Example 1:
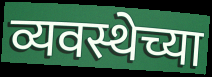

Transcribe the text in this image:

व्यवस्थेच्या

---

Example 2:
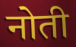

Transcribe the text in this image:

नोती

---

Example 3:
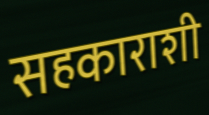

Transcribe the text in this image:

सहकाराशी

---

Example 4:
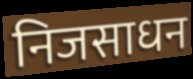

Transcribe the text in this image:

निजसाधन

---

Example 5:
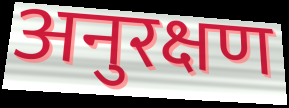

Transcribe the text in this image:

अनुरक्षण